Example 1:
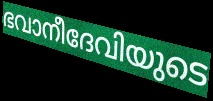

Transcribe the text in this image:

ഭവാനീദേവിയുടെ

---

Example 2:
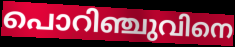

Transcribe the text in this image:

പൊറിഞ്ചുവിനെ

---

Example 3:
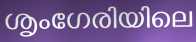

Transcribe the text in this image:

ശൃംഗേരിയിലെ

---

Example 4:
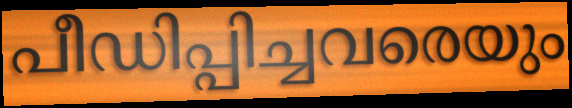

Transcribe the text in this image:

പീഡിപ്പിച്ചവരെയും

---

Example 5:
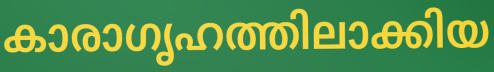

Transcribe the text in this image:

കാരാഗൃഹത്തിലാക്കിയ